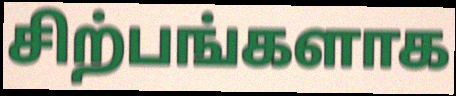
சிற்பங்களாக